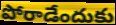
పోరాడేందుకు